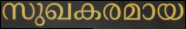
സുഖകരമായ